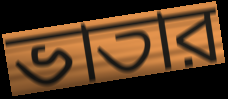
ভাতার